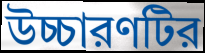
উচ্চারণটির